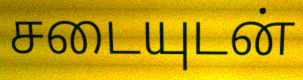
சடையுடன்